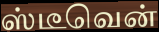
ஸ்டீவென்